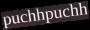
puchhpuchh